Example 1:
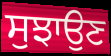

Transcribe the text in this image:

ਸੁਝਾਉਣ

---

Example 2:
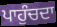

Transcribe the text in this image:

ਪਾਹੁੰਚਦਾ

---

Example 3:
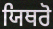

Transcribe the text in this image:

ਯਿਥਰੋ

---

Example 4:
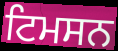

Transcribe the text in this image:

ਟਿਮਸਨ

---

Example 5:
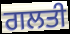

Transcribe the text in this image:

ਗਲਤੀ